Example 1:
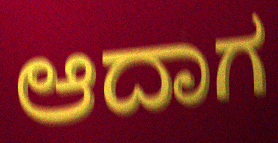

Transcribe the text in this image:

ಆದಾಗ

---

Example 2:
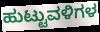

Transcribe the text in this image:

ಹುಟ್ಟುವಳಿಗಳ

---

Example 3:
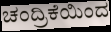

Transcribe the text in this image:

ಚಂದ್ರಿಕೆಯಿಂದ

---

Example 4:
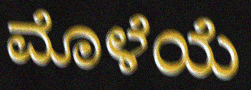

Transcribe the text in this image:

ಮೊಳೆಯೆ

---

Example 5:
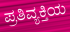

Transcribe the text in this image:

ಪ್ರತಿವ್ಯಕ್ತಿಯ